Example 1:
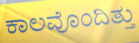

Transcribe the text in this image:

ಕಾಲವೊಂದಿತ್ತು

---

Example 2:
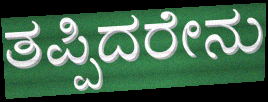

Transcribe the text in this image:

ತಪ್ಪಿದರೇನು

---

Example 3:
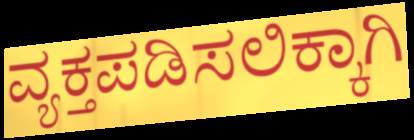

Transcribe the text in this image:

ವ್ಯಕ್ತಪಡಿಸಲಿಕ್ಕಾಗಿ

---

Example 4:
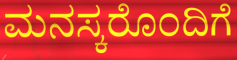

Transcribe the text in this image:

ಮನಸ್ಕರೊಂದಿಗೆ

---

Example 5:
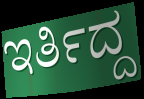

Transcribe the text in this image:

ಇರ್ತಿದ್ದ